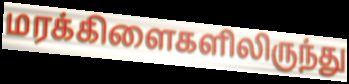
மரக்கிளைகளிலிருந்து